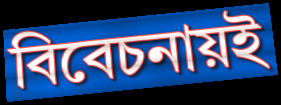
বিবেচনায়ই